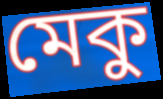
মেকু